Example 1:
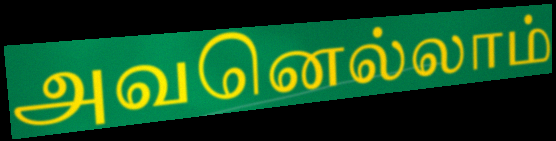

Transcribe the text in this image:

அவனெல்லாம்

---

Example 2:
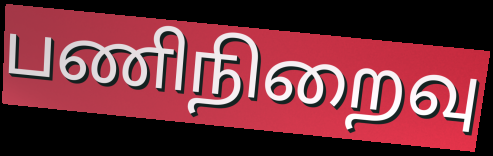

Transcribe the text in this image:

பணிநிறைவு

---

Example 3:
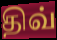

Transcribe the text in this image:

திவ்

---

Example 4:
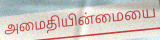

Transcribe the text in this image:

அமைதியின்மையை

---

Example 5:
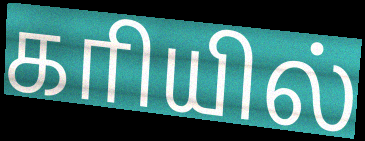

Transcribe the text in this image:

கரியில்